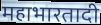
महाभारतादी